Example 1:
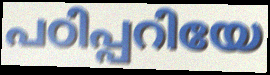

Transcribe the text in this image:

പഠിപ്പറിയേ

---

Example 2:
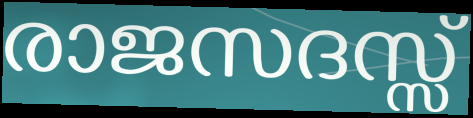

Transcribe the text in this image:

രാജസദസ്സ്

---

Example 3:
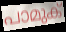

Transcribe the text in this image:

പാമുക്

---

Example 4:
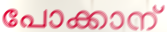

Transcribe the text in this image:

പോക്കാന്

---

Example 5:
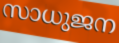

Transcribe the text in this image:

സാധുജന